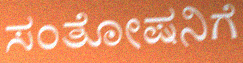
ಸಂತೋಷನಿಗೆ